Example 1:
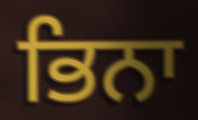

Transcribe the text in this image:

ਭਿਨਾ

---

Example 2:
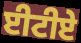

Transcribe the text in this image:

ਈਟੀਏ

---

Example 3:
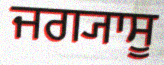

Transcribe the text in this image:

ਜਗ੍ਯਾਸੂ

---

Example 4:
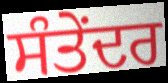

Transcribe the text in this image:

ਸੰਤੇਂਦਰ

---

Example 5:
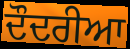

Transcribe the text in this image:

ਦੌਦਰੀਆ